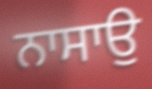
ਨਾਸਾਉ